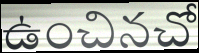
ఉంచినచో